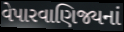
વેપારવાણિજ્યનાં